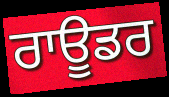
ਰਾਊਡਰ